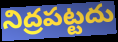
నిద్రపట్టదు